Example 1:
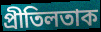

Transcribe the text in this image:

প্ৰীতিলতাক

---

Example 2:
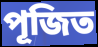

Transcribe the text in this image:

পূজিত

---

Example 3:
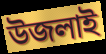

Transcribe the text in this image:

উজলাই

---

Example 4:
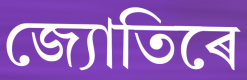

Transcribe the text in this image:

জ্যোতিৰে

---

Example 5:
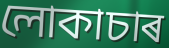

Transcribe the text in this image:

লোকাচাৰ